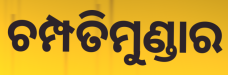
ଚମ୍ପତିମୁଣ୍ଡାର